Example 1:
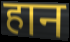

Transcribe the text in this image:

हान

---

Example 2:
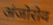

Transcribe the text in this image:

अंजोरोव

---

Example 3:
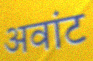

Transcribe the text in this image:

अवांट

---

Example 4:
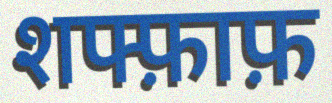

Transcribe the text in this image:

शफ्फ़ाफ़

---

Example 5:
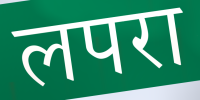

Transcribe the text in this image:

लपरा